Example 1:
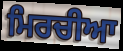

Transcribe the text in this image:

ਮਿਰਚੀਆ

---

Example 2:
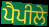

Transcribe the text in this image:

ਪੈਪੀਲੇ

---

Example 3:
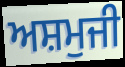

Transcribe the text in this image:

ਅਸ਼ਮੁਜੀ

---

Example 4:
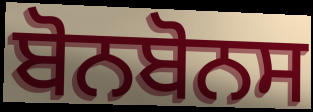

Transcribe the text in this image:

ਬੋਨਬੋਨਸ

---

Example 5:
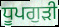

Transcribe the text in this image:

ਧੂਪਗੁੜੀ